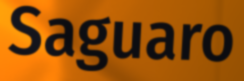
Saguaro